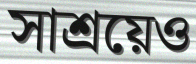
সাশ্রয়েও